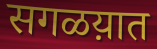
सगळय़ात